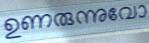
ഉണരുന്നുവോ